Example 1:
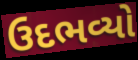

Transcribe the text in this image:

ઉદભવ્યો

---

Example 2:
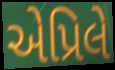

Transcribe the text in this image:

એપ્રિલે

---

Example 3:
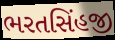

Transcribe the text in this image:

ભરતસિંહજી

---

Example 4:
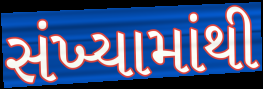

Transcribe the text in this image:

સંખ્યામાંથી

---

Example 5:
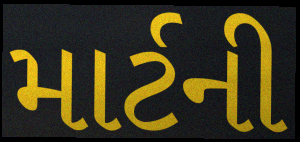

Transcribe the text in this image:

માર્ટની